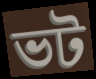
ভট